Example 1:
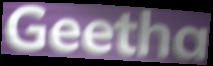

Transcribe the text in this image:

Geetha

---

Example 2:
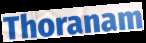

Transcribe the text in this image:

Thoranam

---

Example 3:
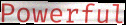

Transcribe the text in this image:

Powerful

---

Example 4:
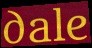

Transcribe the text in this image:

dale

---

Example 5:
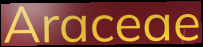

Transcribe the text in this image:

Araceae